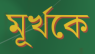
মূর্খকে